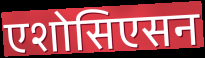
एशोसिएसन